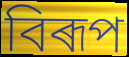
বিৰূপ